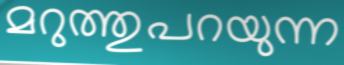
മറുത്തുപറയുന്ന